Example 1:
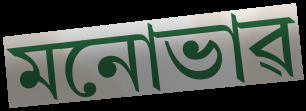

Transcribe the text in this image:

মনোভাৱ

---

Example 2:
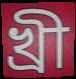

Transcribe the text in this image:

খ্ৰী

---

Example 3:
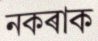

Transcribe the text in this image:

নকৰাক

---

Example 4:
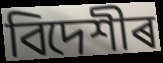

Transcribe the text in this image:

বিদেশীৰ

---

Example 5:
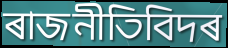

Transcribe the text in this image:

ৰাজনীতিবিদৰ